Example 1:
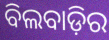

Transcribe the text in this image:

ବିଲବାଡ଼ିର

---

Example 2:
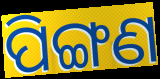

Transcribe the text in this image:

ପିଙ୍ଗଣ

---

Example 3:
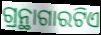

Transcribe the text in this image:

ଗ୍ରନ୍ଥାଗାରଟିଏ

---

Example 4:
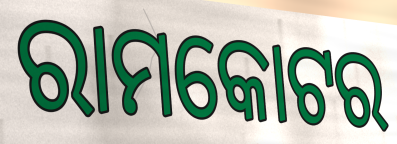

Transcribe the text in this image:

ରାମକୋଟର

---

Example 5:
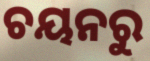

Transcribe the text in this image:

ଚୟନରୁ